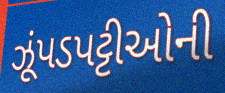
ઝૂંપડપટ્ટીઓની